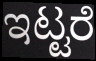
ಇಟ್ಟರೆ